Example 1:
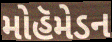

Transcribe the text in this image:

મોહૅમેડન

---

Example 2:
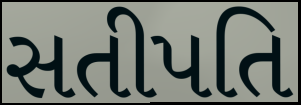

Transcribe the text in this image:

સતીપતિ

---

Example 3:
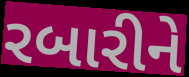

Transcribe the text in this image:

રબારીને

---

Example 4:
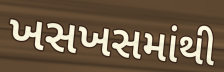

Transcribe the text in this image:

ખસખસમાંથી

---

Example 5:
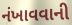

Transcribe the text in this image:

નંખાવવાની